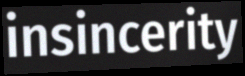
insincerity